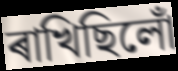
ৰাখিছিলোঁ